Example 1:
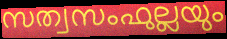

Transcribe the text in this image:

സത്വസംഫുല്ലയും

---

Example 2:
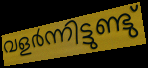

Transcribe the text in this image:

വളർന്നിട്ടുണ്ടു്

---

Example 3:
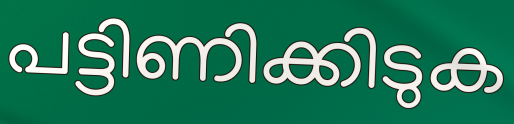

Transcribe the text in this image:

പട്ടിണിക്കിടുക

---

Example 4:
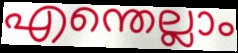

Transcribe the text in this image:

എന്തെല്ലാം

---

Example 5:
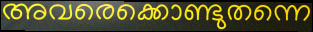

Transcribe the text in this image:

അവരെക്കൊണ്ടുതന്നെ